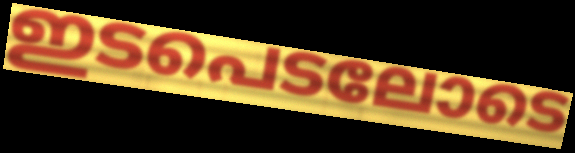
ഇടപെടലോടെ